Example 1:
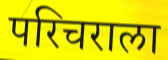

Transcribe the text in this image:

परिचराला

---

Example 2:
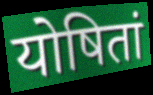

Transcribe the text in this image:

योषितां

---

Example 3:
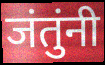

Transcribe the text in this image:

जंतुंनी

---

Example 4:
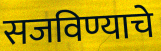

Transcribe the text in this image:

सजविण्याचे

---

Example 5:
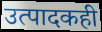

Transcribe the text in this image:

उत्पादकही